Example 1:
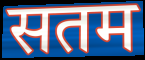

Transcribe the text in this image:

सतम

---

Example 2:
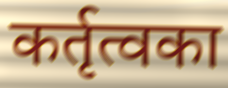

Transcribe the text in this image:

कर्तृत्वका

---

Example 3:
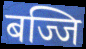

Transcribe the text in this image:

बज्जि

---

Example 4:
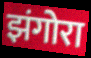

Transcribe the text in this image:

झंगोरा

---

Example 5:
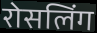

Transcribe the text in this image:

रोसलिंग